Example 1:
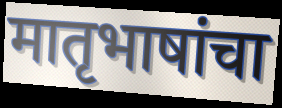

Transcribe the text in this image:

मातृभाषांचा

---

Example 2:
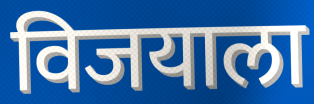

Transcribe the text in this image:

विजयाला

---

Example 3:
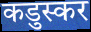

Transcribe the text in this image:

कडुस्कर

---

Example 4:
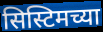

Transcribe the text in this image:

सिस्टिमच्या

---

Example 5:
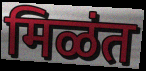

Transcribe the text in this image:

मिळंत